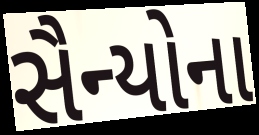
સૈન્યોના